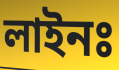
লাইনঃ